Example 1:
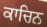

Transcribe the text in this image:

ਕਾਚਿਨ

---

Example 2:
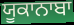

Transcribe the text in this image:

ਯੂਕਾਨਾਬਾ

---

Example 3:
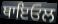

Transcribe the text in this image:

ਥਾਇਓਲ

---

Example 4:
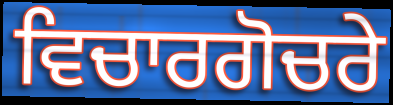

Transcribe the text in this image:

ਵਿਚਾਰਗੋਚਰੇ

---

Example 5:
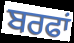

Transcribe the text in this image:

ਬਰਫਾਂ